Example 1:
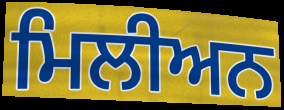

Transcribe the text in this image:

ਮਿਲੀਅਨ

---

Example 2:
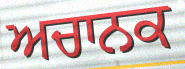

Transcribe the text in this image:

ਅਚਾਨਕ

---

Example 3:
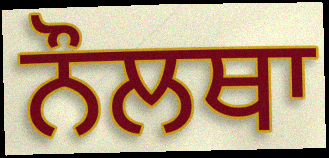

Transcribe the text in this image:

ਨੌਲਥਾ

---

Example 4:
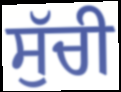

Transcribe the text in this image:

ਸੁੱਚੀ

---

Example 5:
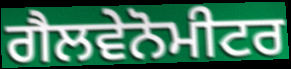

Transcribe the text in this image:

ਗੈਲਵੇਨੋਮੀਟਰ